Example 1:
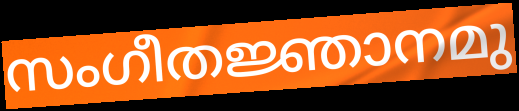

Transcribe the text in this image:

സംഗീതജ്ഞാനമു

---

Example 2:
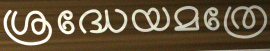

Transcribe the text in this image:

ശ്രദ്ധേയമത്രേ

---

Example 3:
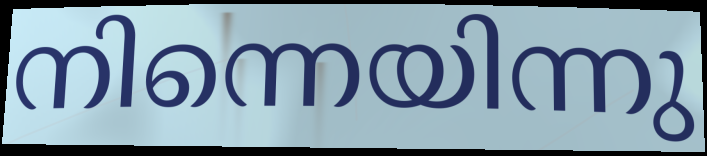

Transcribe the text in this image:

നിന്നെയിന്നു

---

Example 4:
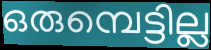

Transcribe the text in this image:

ഒരുമ്പെട്ടില്ല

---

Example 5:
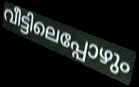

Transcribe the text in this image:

വീട്ടിലെപ്പോഴും